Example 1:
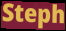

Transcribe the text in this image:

Steph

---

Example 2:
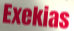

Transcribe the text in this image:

Exekias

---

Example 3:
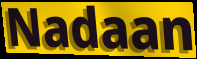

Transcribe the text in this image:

Nadaan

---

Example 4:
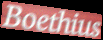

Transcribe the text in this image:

Boethius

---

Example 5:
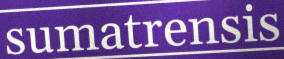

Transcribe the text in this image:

sumatrensis